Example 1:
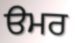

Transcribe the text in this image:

ੳਮਰ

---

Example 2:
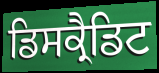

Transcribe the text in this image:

ਡਿਸਕ੍ਰੈਡਿਟ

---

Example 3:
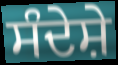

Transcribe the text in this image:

ਸੰਦੇਸ਼ੇ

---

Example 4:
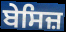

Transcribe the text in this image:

ਬੇਸਿਜ਼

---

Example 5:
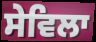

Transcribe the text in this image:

ਸੇਵਿਲਾ